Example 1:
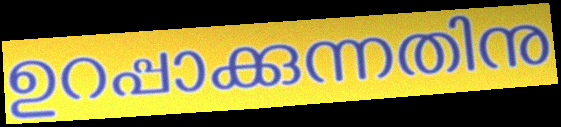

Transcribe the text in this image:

ഉറപ്പാക്കുന്നതിനു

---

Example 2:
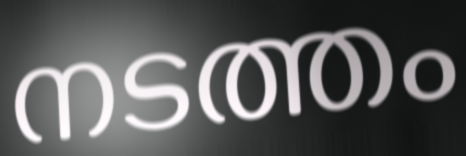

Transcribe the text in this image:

നടത്തം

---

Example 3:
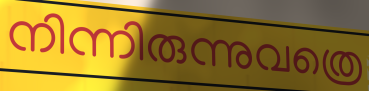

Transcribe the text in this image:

നിന്നിരുന്നുവത്രെ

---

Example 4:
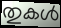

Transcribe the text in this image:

തുകൾ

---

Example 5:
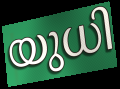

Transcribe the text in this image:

യുധി